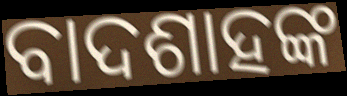
ବାଦଶାହଙ୍କ